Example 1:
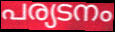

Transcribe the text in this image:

പര്യടനം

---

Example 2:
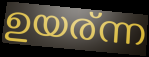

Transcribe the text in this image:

ഉയര്ന്ന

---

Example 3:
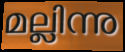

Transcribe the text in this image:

മല്ലിന്നു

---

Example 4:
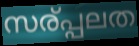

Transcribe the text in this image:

സര്പ്പലത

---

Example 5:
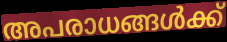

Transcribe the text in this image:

അപരാധങ്ങൾക്ക്